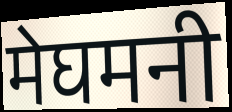
मेघमनी